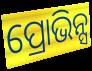
ପ୍ରୋଭିନ୍ସ